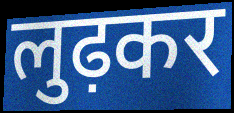
लुढ़कर